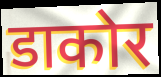
डाकोर